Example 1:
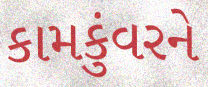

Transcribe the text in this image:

કામકુંવરને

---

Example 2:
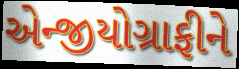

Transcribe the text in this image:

એન્જીયોગ્રાફીને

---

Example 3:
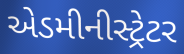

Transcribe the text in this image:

એડમીનીસ્ટ્રેટર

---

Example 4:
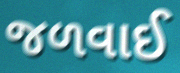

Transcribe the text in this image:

જળવાઈ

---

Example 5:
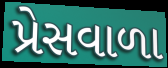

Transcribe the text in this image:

પ્રેસવાળા